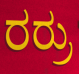
ರರ್ರು